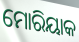
ମୋରିୟାକ